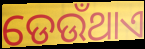
ଡେଉଁଥାଏ